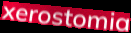
xerostomia